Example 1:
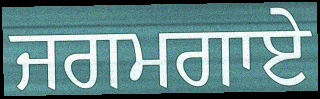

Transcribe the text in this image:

ਜਗਮਗਾਏ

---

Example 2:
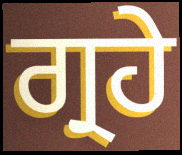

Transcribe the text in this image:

ਗ੍ਰਹੇ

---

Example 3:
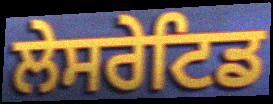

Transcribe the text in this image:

ਲੇਸਰੇਟਿਡ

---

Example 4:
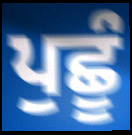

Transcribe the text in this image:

ਪੁਛੂੰ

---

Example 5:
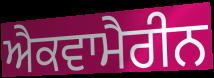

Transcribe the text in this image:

ਐਕਵਾਮੈਰੀਨ